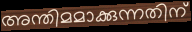
അന്തിമമാക്കുന്നതിന്